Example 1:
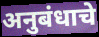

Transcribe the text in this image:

अनुबंधाचे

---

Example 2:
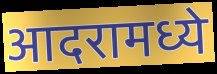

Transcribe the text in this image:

आदरामध्ये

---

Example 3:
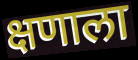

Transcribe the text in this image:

क्षणाला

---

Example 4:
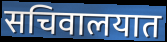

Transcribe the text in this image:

सचिवालयात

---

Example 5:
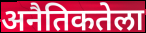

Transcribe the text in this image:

अनैतिकतेला